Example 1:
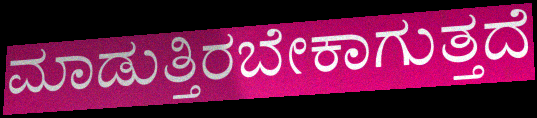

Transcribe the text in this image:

ಮಾಡುತ್ತಿರಬೇಕಾಗುತ್ತದೆ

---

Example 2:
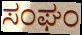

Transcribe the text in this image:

ಸಂಘಂ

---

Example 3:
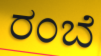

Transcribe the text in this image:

ರಂಬೆ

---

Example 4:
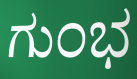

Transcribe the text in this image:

ಗುಂಭ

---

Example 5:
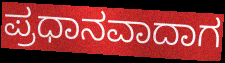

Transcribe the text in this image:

ಪ್ರಧಾನವಾದಾಗ